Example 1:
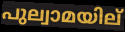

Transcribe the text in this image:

പുല്വാമയില്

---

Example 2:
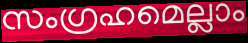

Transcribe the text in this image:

സംഗ്രഹമെല്ലാം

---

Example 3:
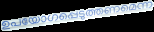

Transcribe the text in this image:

ഉപയോഗപ്പെടുത്തണമെന്ന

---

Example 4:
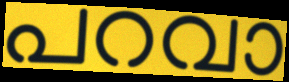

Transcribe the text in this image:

പറവാ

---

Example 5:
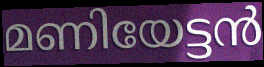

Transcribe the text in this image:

മണിയേട്ടൻ